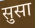
सुसा